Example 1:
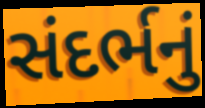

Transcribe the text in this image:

સંદર્ભનું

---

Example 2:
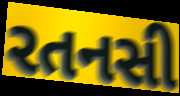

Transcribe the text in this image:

રતનસી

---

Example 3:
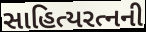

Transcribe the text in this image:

સાહિત્યરત્નની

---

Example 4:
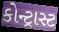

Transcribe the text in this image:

કોન્ટ્રાસ્ટ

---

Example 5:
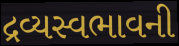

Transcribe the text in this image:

દ્રવ્યસ્વભાવની